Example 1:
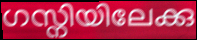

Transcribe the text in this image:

ഗസ്നിയിലേക്കു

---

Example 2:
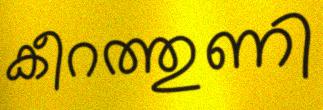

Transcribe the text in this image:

കീറത്തുണി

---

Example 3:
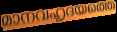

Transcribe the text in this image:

മാനവഹൃദയത്തെ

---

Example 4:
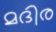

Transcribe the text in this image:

മദിര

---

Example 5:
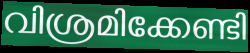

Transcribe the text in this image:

വിശ്രമിക്കേണ്ടി